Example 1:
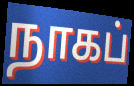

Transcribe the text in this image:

நாகப்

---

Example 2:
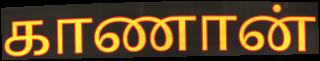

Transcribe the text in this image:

காணான்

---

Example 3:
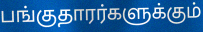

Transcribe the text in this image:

பங்குதாரர்களுக்கும்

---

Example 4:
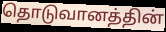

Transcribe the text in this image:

தொடுவானத்தின்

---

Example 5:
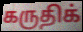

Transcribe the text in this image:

கருதிக்